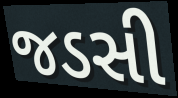
જડસી